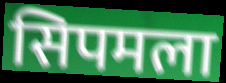
सिपमला